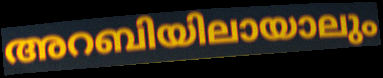
അറബിയിലായാലും